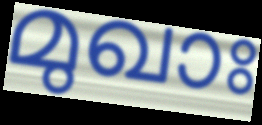
മുഖാഃ